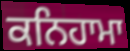
ਕਨਿਹਾਮਾ